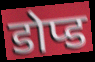
डोप्ड